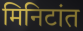
मिनिटांत